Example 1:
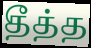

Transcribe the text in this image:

தீத்த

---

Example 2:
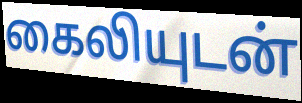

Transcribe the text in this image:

கைலியுடன்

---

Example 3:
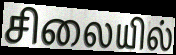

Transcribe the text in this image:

சிலையில்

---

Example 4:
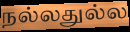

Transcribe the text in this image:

நல்லதுல்ல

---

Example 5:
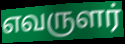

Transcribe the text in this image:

எவருளர்